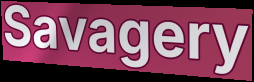
Savagery